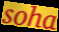
soha